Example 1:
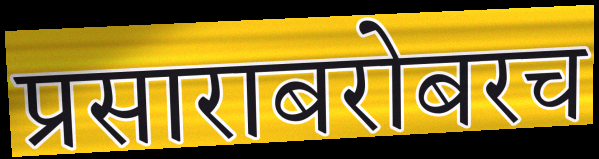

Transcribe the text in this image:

प्रसाराबरोबरच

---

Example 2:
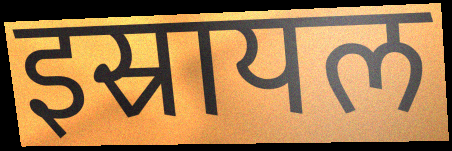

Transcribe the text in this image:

इस्रायल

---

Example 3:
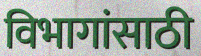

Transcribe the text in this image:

विभागांसाठी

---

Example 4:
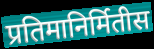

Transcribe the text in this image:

प्रतिमानिर्मितीस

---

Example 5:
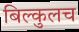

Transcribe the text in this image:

बिल्कुलच